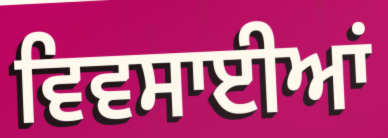
ਵਿਵਸਾਈਆਂ